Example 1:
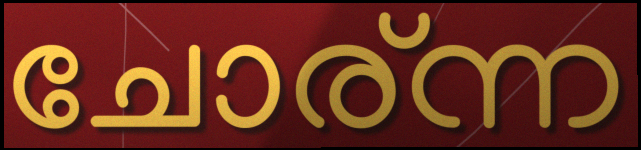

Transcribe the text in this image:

ചോര്ന്ന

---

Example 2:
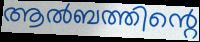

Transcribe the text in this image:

ആൽബത്തിന്റെ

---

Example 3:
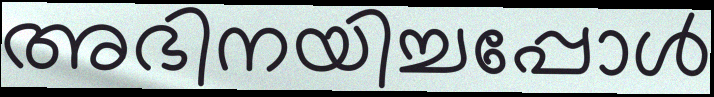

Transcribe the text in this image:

അഭിനയിച്ചപ്പോൾ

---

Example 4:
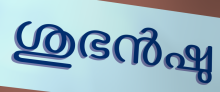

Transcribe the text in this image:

ശുഭൻഷു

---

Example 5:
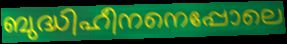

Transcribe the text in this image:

ബുദ്ധിഹീനനെപ്പോലെ